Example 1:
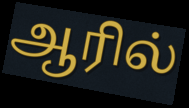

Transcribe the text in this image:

ஆரில்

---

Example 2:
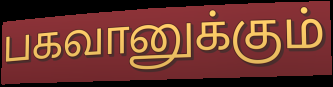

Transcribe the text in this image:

பகவானுக்கும்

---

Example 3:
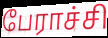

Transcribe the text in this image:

பேராச்சி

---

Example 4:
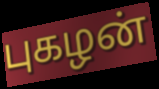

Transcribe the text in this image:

புகழன்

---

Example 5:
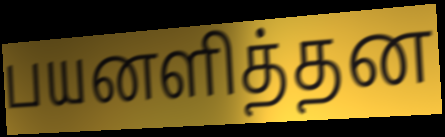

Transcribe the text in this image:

பயனளித்தன